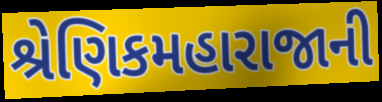
શ્રેણિકમહારાજાની